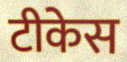
टीकेस